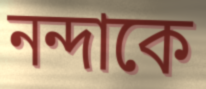
নন্দাকে